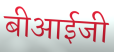
बीआईजी